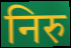
निरु